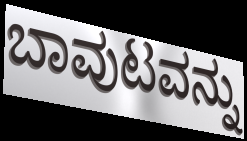
ಬಾವುಟವನ್ನು